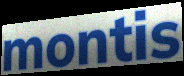
montis